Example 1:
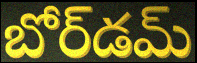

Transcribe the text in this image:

బోర్‌డమ్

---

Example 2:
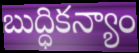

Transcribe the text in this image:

బుద్ధికన్యాం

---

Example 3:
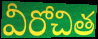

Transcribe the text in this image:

వీరోచిత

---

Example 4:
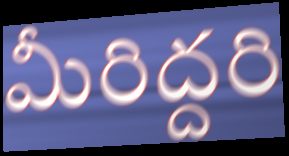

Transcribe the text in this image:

మీరిద్దరి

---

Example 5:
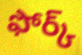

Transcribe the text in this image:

ఫోర్క్